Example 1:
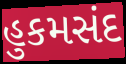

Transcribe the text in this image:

હુકમસંદ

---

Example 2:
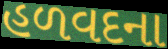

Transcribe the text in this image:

હળવદના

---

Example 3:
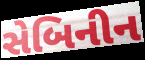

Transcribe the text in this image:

સેબિનીન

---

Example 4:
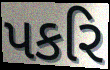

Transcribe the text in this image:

પકરિ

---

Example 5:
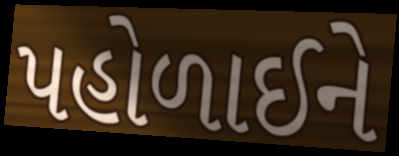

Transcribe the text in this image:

પહોળાઈને